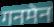
गनमेन